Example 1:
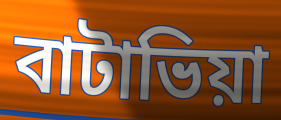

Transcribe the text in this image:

বাটাভিয়া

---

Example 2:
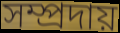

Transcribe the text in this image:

সম্প্রদায়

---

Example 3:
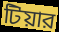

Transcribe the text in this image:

টিয়ার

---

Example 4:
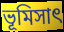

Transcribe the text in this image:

ভূমিসাৎ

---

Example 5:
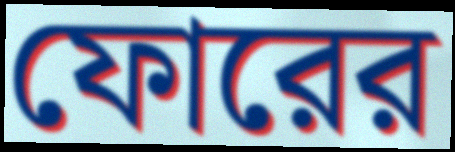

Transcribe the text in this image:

ফোরের